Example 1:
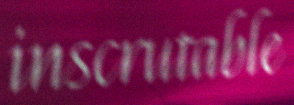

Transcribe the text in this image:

inscrutable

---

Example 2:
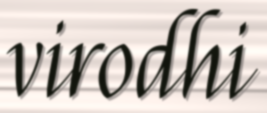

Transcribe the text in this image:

virodhi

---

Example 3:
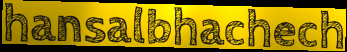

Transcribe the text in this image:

hansalbhachech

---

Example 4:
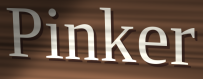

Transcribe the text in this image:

Pinker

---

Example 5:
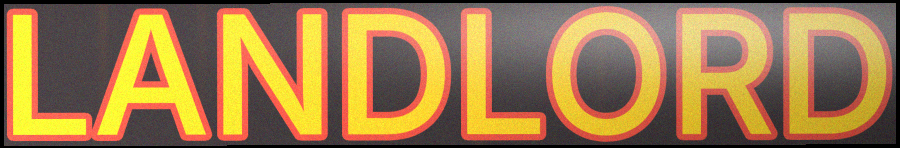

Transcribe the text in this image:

LANDLORD